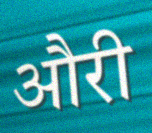
औरी